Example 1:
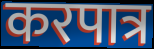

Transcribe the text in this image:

करपात्र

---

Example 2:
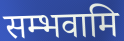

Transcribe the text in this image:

सम्भवामि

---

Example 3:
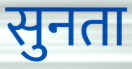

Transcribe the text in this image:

सुनता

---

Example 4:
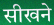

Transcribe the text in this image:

सीखने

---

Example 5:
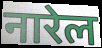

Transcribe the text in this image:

नारेल